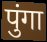
पुंगा